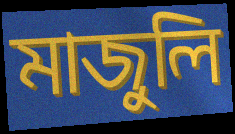
মাজুলি